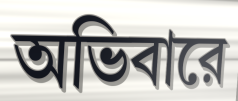
অভিবারে